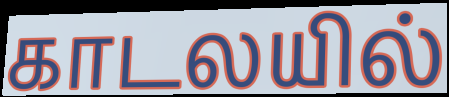
காடலயில்